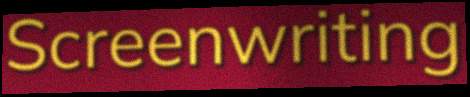
Screenwriting